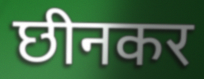
छीनकर